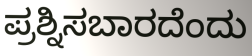
ಪ್ರಶ್ನಿಸಬಾರದೆಂದು